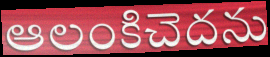
ఆలంకిచెదను